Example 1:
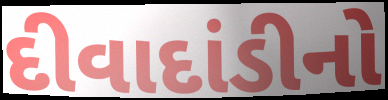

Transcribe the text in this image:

દીવાદાંડીનો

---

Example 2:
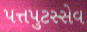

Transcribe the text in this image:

પત્તપુટસ્સેવ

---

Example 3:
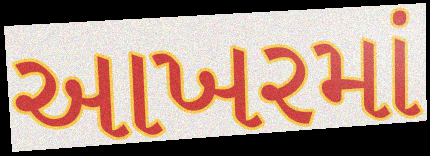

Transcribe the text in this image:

આખરમાં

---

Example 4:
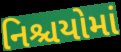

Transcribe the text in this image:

નિશ્ચયોમાં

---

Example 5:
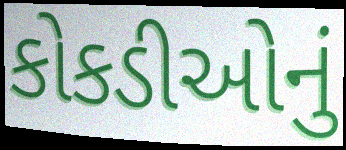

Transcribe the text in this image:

કોકડીઓનું